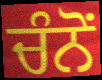
ਚੰਨੋਂ